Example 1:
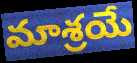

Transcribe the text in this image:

మాశ్రయే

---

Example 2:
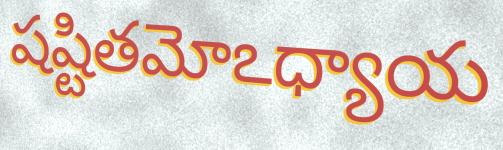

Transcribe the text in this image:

షష్టితమోఽధ్యాయ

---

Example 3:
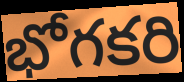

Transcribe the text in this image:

భోగకరి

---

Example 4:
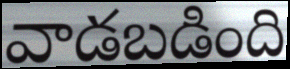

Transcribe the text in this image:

వాడబడింది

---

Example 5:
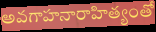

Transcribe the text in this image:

అవగాహనారాహిత్యంతో